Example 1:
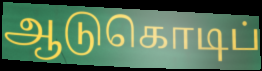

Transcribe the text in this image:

ஆடுகொடிப்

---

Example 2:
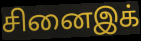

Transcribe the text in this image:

சினைஇக்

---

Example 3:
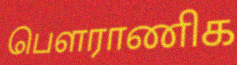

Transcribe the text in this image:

பௌராணிக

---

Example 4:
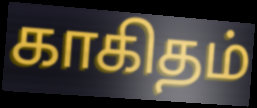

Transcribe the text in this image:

காகிதம்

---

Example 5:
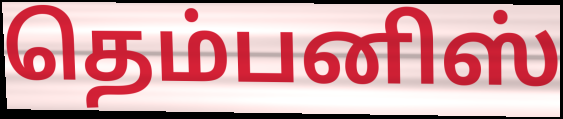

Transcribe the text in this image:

தெம்பனிஸ்